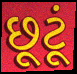
છૂટૂં